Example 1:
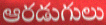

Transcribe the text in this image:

ఆరడుగులు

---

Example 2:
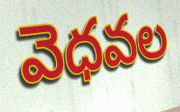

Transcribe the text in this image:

వెధవల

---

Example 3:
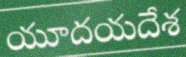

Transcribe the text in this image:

యూదయదేశ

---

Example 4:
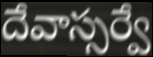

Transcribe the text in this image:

దేవాస్సర్వే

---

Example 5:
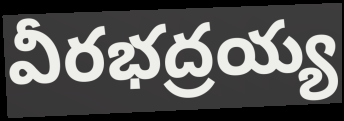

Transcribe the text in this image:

వీరభద్రయ్య